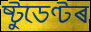
ষ্টুডেণ্টৰ